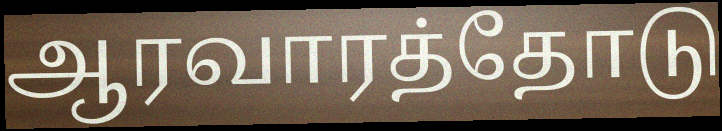
ஆரவாரத்தோடு